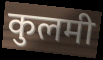
कुलमी